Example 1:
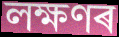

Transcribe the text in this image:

লক্ষণৰ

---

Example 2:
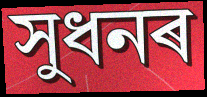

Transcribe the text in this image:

সুধনৰ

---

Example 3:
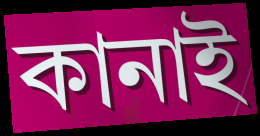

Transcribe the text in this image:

কানাই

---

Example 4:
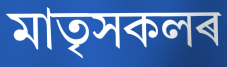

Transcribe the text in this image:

মাতৃসকলৰ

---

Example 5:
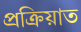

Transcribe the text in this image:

প্ৰক্ৰিয়াত